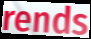
rends